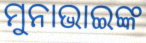
ମୁନାଭାଇଙ୍କ